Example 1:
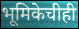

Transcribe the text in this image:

भूमिकेचीही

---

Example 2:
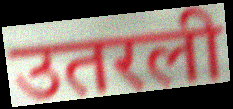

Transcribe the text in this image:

उतरली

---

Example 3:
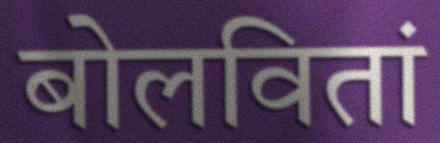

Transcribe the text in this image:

बोलवितां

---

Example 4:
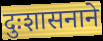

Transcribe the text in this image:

दुःशासनाने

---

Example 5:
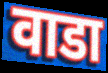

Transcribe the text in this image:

वाडा